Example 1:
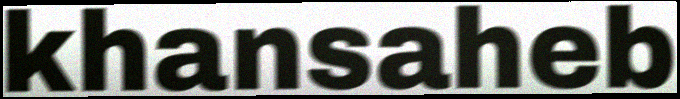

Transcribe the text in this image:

khansaheb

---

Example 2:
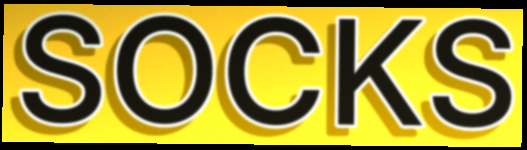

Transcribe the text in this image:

SOCKS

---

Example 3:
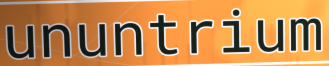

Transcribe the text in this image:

ununtrium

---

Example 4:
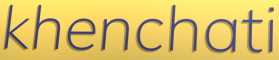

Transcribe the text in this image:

khenchati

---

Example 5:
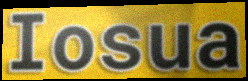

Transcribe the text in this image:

Iosua